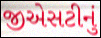
જીએસટીનું